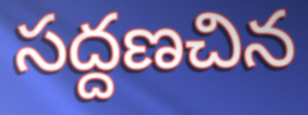
సద్దణచిన